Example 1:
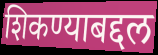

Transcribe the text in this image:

शिकण्याबद्दल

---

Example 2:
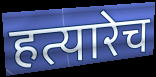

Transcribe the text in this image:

हत्यारेच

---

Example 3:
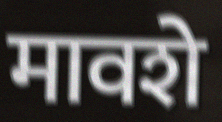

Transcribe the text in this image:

मावशे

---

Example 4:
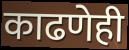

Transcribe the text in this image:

काढणेही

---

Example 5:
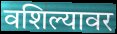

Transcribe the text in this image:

वशिल्यावर